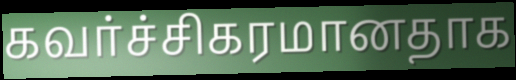
கவர்ச்சிகரமானதாக